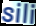
sili